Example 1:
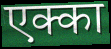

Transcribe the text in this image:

एक्का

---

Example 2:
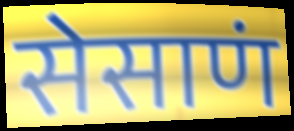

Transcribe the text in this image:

सेसाणं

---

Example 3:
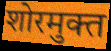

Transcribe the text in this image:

शोरमुक्त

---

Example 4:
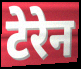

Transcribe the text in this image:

टेरेन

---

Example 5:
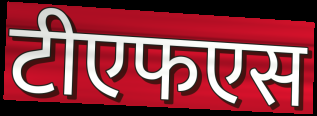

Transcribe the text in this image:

टीएफएस